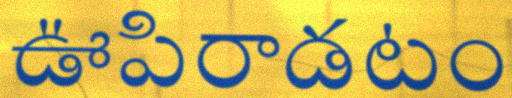
ఊపిరాడటం